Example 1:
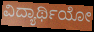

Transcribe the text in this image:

ವಿದ್ಯಾರ್ಥಿಯೋ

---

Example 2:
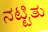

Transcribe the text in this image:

ನಟ್ಟಿತು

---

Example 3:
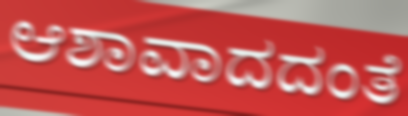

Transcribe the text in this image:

ಆಶಾವಾದದಂತೆ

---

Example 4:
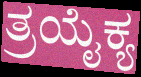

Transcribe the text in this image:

ತ್ರಯೈಕ್ಯ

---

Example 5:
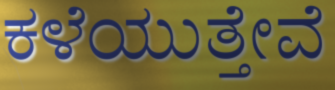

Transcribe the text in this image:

ಕಳೆಯುತ್ತೇವೆ